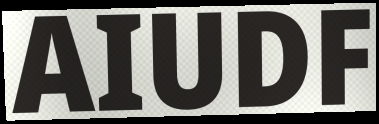
AIUDF